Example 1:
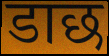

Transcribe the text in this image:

डाछ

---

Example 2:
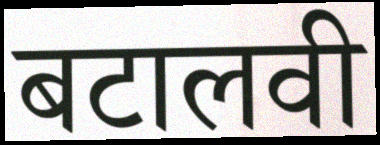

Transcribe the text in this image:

बटालवी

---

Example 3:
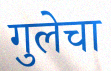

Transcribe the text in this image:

गुलेचा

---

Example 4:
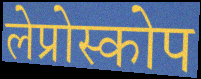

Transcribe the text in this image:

लेप्रोस्कोप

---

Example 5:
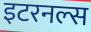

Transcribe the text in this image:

इटरनल्स